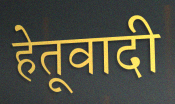
हेतूवादी